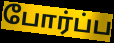
போர்ப்ப